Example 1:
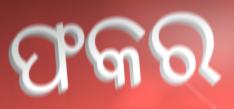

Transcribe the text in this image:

ଫକର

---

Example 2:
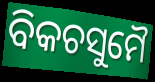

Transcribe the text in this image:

ବିକଚସୁମୈ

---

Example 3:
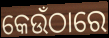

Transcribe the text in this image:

କେଉଁଠାରେ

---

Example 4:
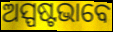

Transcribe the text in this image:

ଅସ୍ପଷ୍ଟଭାବେ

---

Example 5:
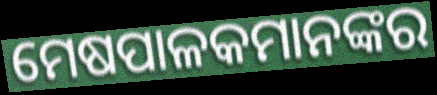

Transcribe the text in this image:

ମେଷପାଳକମାନଙ୍କର